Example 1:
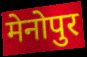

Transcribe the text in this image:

मेनोपुर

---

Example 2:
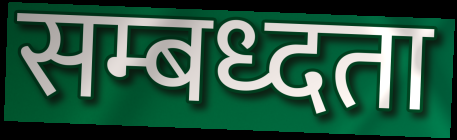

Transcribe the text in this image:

सम्बध्दता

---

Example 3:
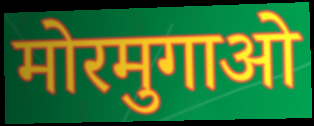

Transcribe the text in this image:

मोरमुगाओ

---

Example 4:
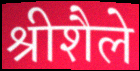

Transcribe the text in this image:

श्रीशैले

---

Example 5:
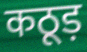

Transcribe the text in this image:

कठूड़